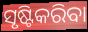
ସୃଷ୍ଟିକରିବା